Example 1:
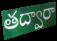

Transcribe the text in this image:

తద్వారా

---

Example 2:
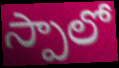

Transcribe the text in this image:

స్పాలో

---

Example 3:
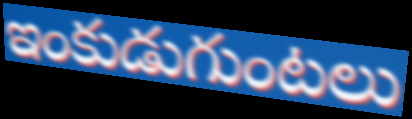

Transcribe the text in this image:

ఇంకుడుగుంటలు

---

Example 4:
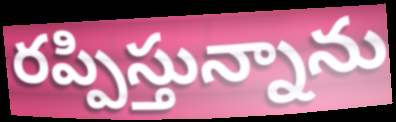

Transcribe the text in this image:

రప్పిస్తున్నాను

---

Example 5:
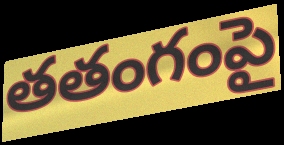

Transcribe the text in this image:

తతంగంపై